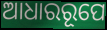
ଆଧାରରୂପେ